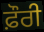
ਫ਼ੌਰੀ